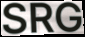
SRG